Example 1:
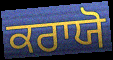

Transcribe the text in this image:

ਕਰਾਯੋ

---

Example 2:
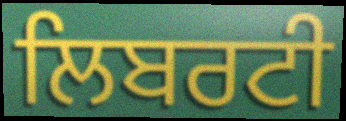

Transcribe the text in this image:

ਲਿਬਰਟੀ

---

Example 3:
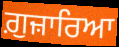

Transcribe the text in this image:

ਗ਼ੁਜ਼ਾਰਿਆ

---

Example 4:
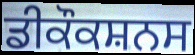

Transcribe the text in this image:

ਡੀਕੌਕਸ਼ਨਸ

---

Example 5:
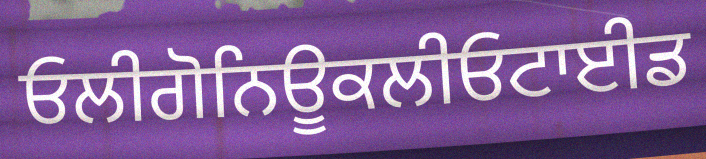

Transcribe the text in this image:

ਓਲੀਗੋਨਿਊਕਲੀਓਟਾਈਡ